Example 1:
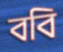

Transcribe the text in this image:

ববি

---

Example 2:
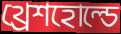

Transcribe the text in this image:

থ্রেশহোল্ডে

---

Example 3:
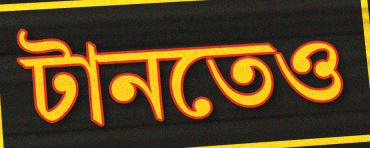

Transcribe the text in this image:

টানতেও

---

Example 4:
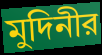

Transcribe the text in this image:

মুদিনীর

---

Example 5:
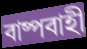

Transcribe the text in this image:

বাষ্পবাহী